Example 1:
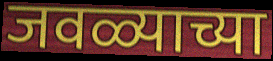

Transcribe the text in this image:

जवळ्याच्या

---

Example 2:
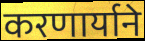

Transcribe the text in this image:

करणार्याने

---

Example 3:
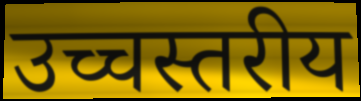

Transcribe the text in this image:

उच्चस्तरीय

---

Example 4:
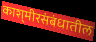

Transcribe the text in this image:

काश्मीरसंबंधातील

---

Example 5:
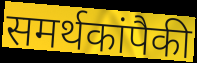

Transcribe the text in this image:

समर्थकांपैकी